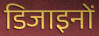
डिजाइनों